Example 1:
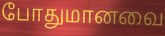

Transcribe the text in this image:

போதுமானவை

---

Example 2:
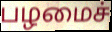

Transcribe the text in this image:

பழமைச்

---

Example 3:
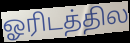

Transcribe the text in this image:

ஓரிடத்தில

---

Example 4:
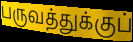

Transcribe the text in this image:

பருவத்துக்குப்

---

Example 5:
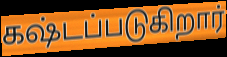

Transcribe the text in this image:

கஷ்டப்படுகிறார்